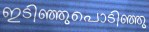
ഇടിഞ്ഞുപൊടിഞ്ഞു